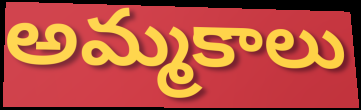
అమ్మకాలు